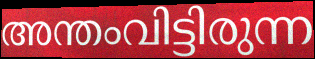
അന്തംവിട്ടിരുന്ന